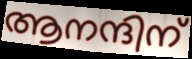
ആനന്ദിന്